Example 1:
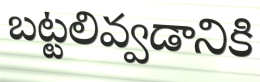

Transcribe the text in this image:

బట్టలివ్వడానికి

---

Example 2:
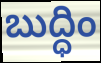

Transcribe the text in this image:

బుద్ధిం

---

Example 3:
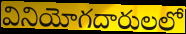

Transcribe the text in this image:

వినియోగదారులలో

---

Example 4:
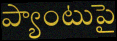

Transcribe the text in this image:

ప్యాంటుపై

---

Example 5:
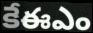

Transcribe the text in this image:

కేఈఎం